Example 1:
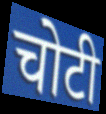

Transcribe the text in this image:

चोटी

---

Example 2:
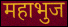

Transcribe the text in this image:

महाभुज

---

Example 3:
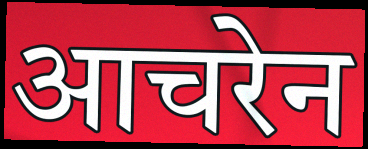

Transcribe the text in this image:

आचरेन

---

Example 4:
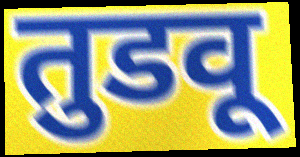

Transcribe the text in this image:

तुडवू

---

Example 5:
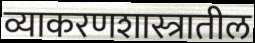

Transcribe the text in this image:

व्याकरणशास्त्रातील